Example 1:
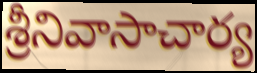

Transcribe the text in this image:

శ్రీనివాసాచార్య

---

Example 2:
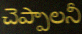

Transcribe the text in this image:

చెప్పాలనీ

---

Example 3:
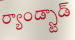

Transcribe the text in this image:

ర్యాండ్స్టాడ్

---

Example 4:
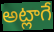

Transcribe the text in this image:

అట్లాగే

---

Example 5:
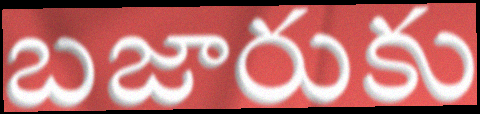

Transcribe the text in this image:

బజారుకు